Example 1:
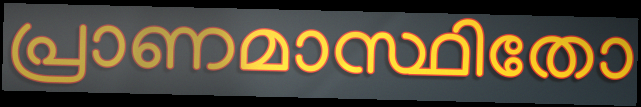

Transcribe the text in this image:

പ്രാണമാസ്ഥിതോ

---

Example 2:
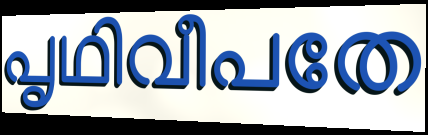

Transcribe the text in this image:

പൃഥിവീപതേ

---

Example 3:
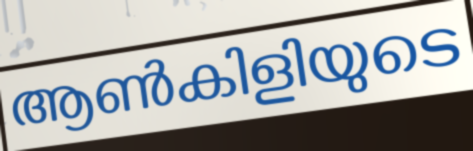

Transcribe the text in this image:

ആൺകിളിയുടെ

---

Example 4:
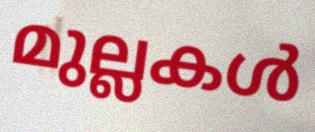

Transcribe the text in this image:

മുല്ലകൾ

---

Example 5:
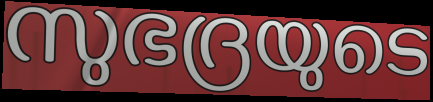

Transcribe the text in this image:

സുഭദ്രയുടെ